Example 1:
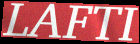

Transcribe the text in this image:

LAFTI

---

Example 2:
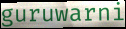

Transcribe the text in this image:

guruwarni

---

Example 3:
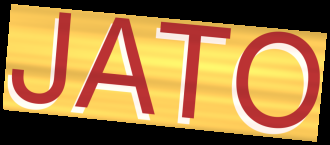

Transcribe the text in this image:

JATO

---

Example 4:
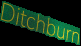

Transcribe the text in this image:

Ditchburn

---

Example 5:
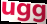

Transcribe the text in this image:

ugg